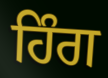
ਹਿੰਗ